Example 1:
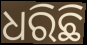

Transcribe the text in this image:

ଧରିଛି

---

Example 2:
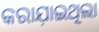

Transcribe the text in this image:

କରାଯ଼ାଇଥିଲା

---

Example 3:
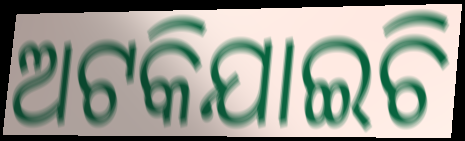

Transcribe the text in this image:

ଅଟକିଯାଇଚି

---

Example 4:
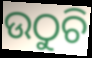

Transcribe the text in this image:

ଉଠୁଚି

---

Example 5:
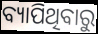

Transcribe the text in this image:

ବ୍ୟାପିଥିବାରୁ